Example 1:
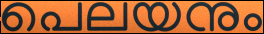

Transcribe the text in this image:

പെലയനും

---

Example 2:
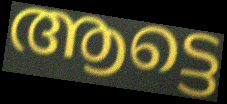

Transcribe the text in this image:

ആട്ടെ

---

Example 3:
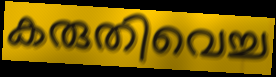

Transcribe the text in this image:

കരുതിവെച്ച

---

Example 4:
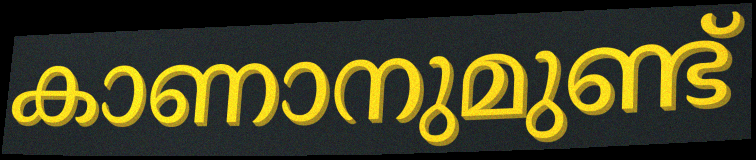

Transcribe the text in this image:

കാണാനുമുണ്ട്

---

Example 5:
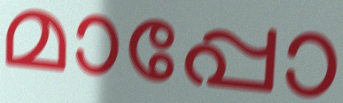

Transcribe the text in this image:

മാപ്പോ